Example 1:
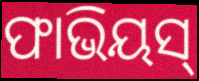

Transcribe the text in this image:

ଫାଭିୟସ୍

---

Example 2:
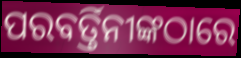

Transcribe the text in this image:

ପରବର୍ତ୍ତିନୀଙ୍କଠାରେ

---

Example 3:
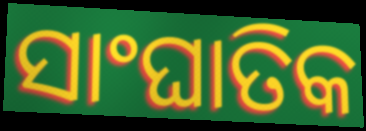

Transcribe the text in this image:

ସାଂଘାତିକ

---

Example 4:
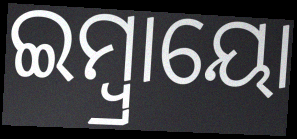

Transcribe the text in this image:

ଇମ୍ବ୍ରାୟୋ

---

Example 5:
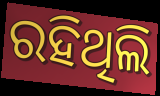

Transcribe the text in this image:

ରହିଥିଲି